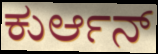
ಕುರ್ಆನ್